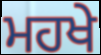
ਮਹਖੇ